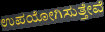
ಉಪಯೋಗಿಸುತ್ತೇವೆ